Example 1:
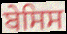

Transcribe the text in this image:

ਬੇਸਿਸ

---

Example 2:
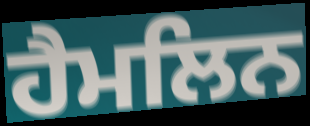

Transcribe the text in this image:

ਹੈਮਲਿਨ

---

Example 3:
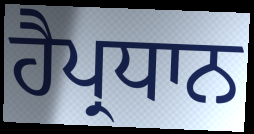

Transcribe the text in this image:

ਹੈਪ੍ਰਧਾਨ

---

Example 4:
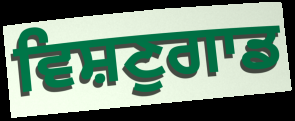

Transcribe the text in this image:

ਵਿਸ਼ਣੁਗਾਡ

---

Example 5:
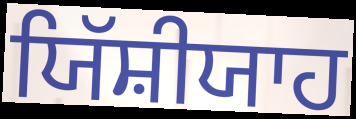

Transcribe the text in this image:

ਯਿੱਸ਼ੀਯਾਹ